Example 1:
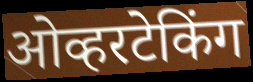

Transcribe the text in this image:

ओव्हरटेकिंग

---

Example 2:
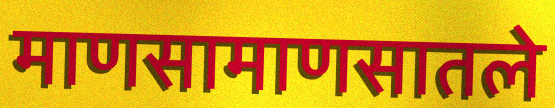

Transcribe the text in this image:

माणसामाणसातले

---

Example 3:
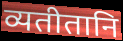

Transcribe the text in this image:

व्यतीतानि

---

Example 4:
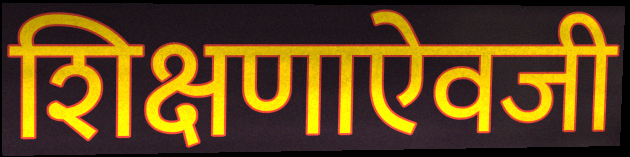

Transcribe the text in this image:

शिक्षणाऐवजी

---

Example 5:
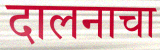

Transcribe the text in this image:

दालनाचा